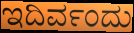
ಇದಿರ್ವಂದು